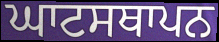
ਘਾਟਸਥਾਪਨ